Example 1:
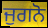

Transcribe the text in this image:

ਜੁਗਨੋ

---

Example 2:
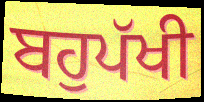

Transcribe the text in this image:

ਬਹੁਪੱਖੀ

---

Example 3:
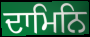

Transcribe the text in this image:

ਦਾਮਿਨਿ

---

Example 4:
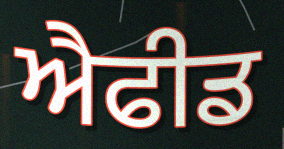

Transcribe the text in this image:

ਐਫੀਡ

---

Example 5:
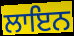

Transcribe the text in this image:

ਲਾਇਨ